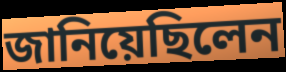
জানিয়েছিলেন